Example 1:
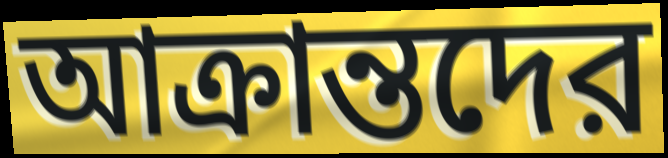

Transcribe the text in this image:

আক্রান্তদের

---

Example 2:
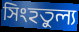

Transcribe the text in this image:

সিংহতুল্য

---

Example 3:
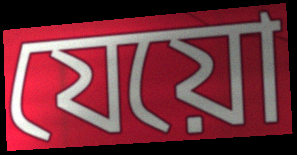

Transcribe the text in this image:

যেয়ো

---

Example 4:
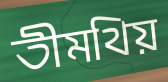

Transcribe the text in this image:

তীমথিয়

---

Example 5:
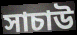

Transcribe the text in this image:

সাচাউ